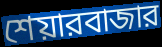
শেয়ারবাজার